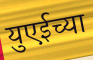
युएईच्या